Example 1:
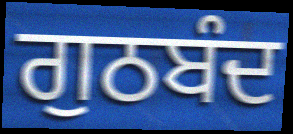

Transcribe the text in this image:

ਗੁਠਬੰਦ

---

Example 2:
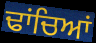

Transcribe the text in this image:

ਢਾਂਚਿਆਂ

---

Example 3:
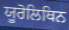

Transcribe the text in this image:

ਯੂਰੋਲਿਥਿਨ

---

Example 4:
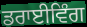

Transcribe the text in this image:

ਡਰਾਈਵਿੰਗ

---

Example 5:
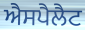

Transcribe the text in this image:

ਐਸਪੈਲੈਟ